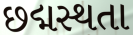
છદ્મસ્થતા